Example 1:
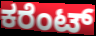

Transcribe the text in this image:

ಕರೆಂಟ್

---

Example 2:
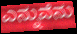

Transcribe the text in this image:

ಎನ್ನುವೆನು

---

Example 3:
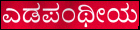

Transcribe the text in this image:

ಎಡಪಂಥೀಯ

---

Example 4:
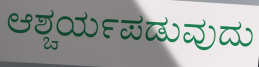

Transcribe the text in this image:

ಆಶ್ಚರ್ಯಪಡುವುದು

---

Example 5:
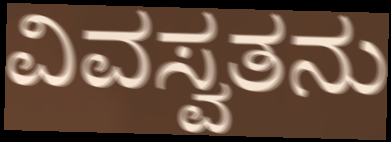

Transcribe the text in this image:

ವಿವಸ್ವತನು